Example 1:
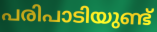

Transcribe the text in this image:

പരിപാടിയുണ്ട്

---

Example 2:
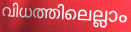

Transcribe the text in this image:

വിധത്തിലെല്ലാം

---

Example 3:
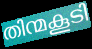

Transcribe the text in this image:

തിന്മകൂടി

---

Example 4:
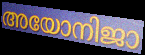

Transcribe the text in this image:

അയോനിജാ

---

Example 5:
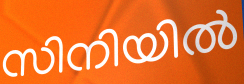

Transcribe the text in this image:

സിനിയിൽ